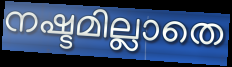
നഷ്ടമില്ലാതെ